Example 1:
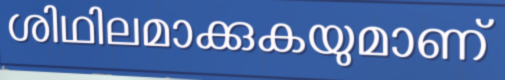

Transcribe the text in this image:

ശിഥിലമാക്കുകയുമാണ്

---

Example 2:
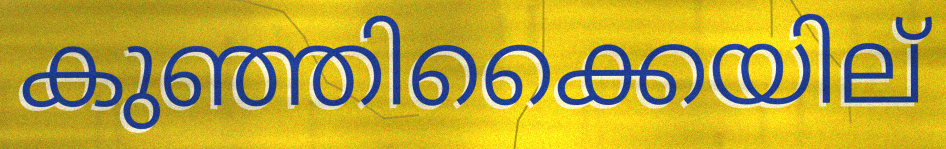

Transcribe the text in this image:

കുഞ്ഞിക്കൈയില്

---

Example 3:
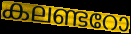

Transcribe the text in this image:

കലണ്ടറോ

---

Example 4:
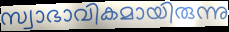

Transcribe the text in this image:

സ്വാഭാവികമായിരുന്നു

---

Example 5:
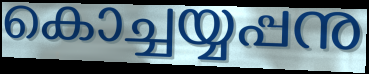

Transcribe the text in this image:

കൊച്ചയ്യപ്പനു